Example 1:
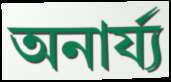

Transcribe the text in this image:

অনাৰ্য্য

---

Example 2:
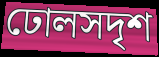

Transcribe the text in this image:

ঢোলসদৃশ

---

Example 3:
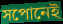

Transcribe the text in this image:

সপোনেই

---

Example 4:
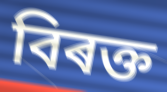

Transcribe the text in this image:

বিৰক্ত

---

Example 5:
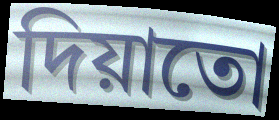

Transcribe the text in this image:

দিয়াতো